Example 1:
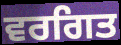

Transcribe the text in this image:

ਵਰਗਿਤ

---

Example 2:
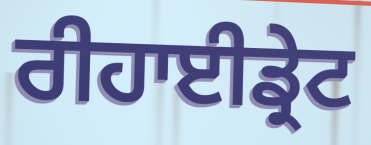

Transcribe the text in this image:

ਰੀਹਾਈਡ੍ਰੇਟ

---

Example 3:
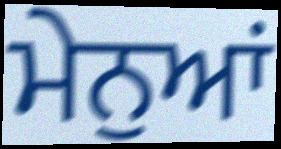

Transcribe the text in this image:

ਮੇਨੁਆਂ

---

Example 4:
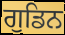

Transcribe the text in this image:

ਗੁਡਿਨ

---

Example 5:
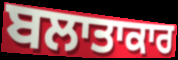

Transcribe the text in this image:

ਬਲਾਤਾਕਾਰ